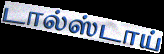
டால்ஸ்டாய்